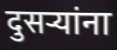
दुसऱ्यांना